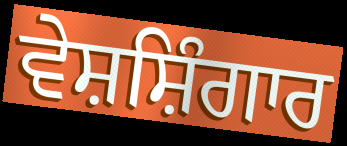
ਵੇਸ਼ਸ਼ਿੰਗਾਰ